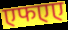
एफएए